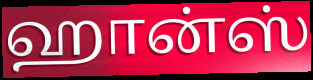
ஹான்ஸ்